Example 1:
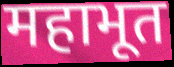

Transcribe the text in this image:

महाभूत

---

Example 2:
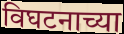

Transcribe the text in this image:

विघटनाच्या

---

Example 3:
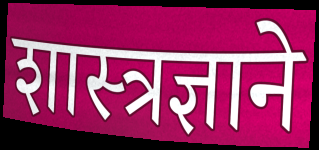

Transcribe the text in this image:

शास्त्रज्ञाने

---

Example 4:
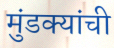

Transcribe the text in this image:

मुंडक्यांची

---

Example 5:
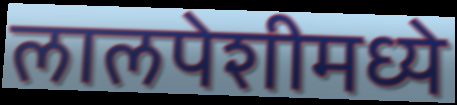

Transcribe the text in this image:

लालपेशीमध्ये